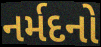
નર્મદનો